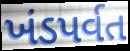
ખંડપર્વત